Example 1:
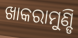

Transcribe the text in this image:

ଖାକରାମୁଣ୍ଡି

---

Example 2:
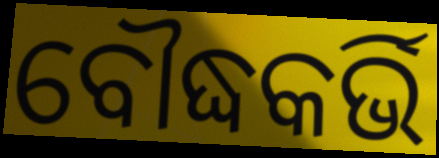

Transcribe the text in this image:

ବୌଦ୍ଧକର୍ଭି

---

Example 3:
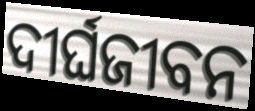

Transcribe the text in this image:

ଦୀର୍ଘଜୀବନ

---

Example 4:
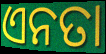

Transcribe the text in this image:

ଏନତା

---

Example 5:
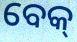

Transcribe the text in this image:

ବେକ୍